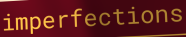
imperfections